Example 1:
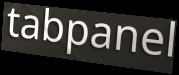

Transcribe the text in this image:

tabpanel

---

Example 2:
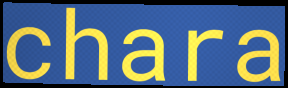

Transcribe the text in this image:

chara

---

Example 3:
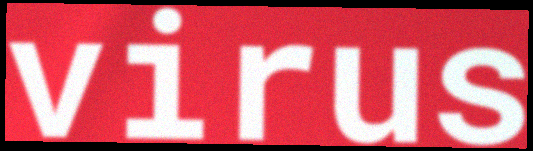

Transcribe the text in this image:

virus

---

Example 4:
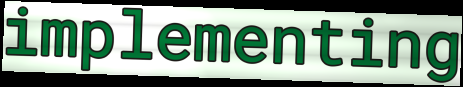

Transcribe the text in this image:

implementing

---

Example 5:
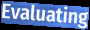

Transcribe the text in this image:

Evaluating